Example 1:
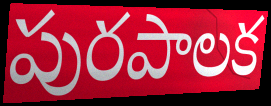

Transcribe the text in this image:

పురపాలక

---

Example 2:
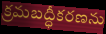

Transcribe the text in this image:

క్రమబద్ధీకరణను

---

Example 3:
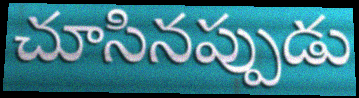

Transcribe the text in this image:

చూసినప్పుడు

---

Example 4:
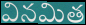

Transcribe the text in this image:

వినమిత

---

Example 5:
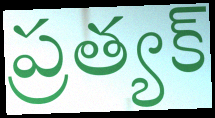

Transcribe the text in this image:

ప్రత్యక్